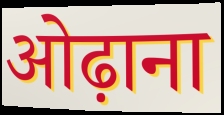
ओढ़ाना